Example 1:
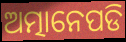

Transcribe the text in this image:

ଅତ୍ମାନେପଡି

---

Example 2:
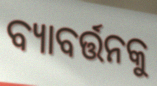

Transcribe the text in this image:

ବ୍ୟାବର୍ତ୍ତନକୁ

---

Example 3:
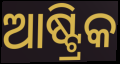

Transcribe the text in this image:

ଆଷ୍ଟ୍ରିକ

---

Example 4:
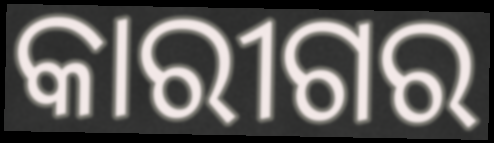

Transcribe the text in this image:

କାରୀଗର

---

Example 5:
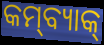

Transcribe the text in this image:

କମ୍‌ବ୍ୟାକ୍